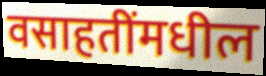
वसाहतींमधील